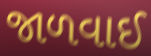
જાળવાઈ